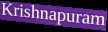
Krishnapuram